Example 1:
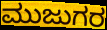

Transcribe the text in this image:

ಮುಜುಗರ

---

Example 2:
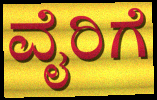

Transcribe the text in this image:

ವೈರಿಗೆ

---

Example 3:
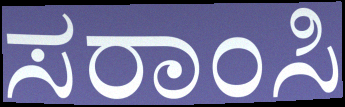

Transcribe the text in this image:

ಸರಾಂಸಿ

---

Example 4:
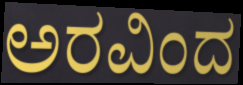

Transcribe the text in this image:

ಅರವಿಂದ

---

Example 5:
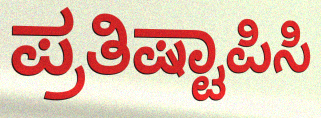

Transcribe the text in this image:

ಪ್ರತಿಷ್ಟಾಪಿಸಿ